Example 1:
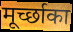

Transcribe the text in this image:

मूर्च्छाका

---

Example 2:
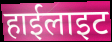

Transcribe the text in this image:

हाईलाइट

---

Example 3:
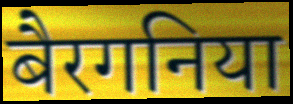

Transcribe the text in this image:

बैरगनिया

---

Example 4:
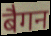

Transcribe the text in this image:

बैगन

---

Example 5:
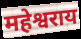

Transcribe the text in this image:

महेश्वराय